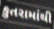
કુતરામાંથી